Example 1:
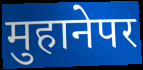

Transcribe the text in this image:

मुहानेपर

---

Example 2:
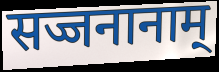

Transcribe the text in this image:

सज्जनानाम्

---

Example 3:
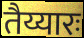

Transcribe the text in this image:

तैय्यारः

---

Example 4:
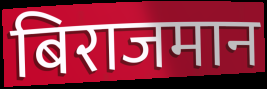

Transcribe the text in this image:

बिराजमान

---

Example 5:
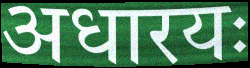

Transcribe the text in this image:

अधारयः